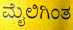
ಮೈಲಿಗಿಂತ